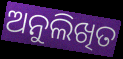
ଅନୁଲିଖିତ